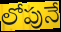
లోపునే